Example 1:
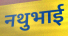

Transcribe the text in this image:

नथुभाई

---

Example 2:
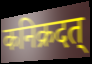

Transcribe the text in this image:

कनिक्रदत्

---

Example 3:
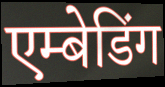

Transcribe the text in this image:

एम्बेडिंग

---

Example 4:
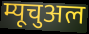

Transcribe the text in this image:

म्यूचुअल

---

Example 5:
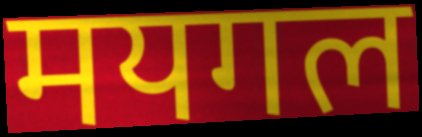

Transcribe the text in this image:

मयगल